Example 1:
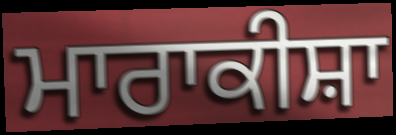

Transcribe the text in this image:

ਮਾਰਾਕੀਸ਼ਾ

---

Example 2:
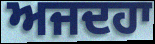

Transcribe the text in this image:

ਅਜਦਹਾ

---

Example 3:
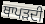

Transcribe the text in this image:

ਥਾਪੜਦੀ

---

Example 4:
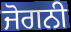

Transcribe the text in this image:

ਜੋਗਨੀ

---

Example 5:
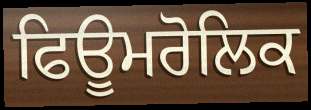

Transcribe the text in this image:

ਫਿਊਮਰੋਲਿਕ